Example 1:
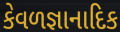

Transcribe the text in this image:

કેવળજ્ઞાનાદિક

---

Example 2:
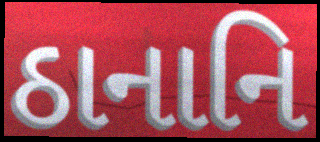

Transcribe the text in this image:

ઠાનાનિ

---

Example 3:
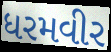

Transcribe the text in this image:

ધરમવીર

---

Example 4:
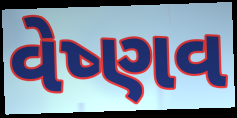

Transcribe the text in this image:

વેષ્ણવ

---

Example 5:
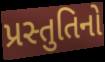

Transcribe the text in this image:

પ્રસ્તુતિનો